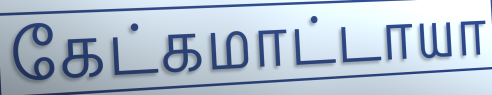
கேட்கமாட்டாயா